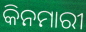
କିନମାରୀ